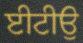
ਈਟੀਉ